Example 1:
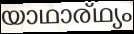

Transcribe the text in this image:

യാഥാര്ഥ്യം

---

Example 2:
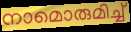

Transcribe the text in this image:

നാമൊരുമിച്ച്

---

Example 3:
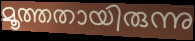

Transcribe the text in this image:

മൂത്തതായിരുന്നു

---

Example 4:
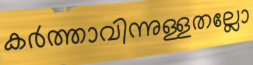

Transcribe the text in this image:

കർത്താവിന്നുള്ളതല്ലോ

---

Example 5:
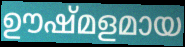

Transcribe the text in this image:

ഊഷ്മളമായ